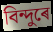
বিন্দুৰে